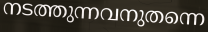
നടത്തുന്നവനുതന്നെ